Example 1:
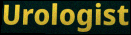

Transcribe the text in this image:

Urologist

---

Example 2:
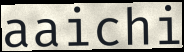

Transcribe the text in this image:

aaichi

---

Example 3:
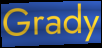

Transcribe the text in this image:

Grady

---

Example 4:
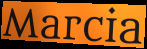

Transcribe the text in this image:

Marcia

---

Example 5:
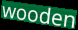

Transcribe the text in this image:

wooden